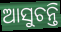
ଆସୁଚନ୍ତି